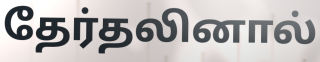
தேர்தலினால்